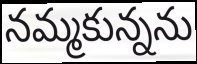
నమ్మకున్నను